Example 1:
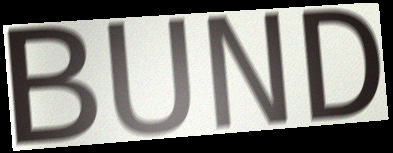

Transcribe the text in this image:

BUND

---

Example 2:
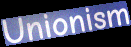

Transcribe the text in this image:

Unionism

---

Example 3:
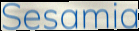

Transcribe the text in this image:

Sesamia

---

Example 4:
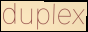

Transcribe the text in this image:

duplex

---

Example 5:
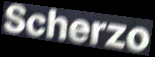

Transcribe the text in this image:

Scherzo